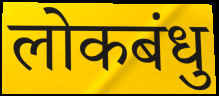
लोकबंधु